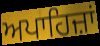
ਅਪਾਹਿਜ਼ਾਂ